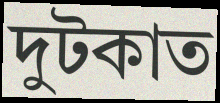
দুটকাত